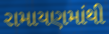
રામાયણમાંથી